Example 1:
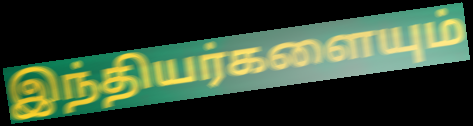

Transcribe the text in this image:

இந்தியர்களையும்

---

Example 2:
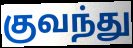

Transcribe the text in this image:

குவந்து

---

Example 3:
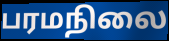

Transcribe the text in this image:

பரமநிலை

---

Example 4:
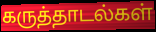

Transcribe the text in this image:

கருத்தாடல்கள்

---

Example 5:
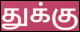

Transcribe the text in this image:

துக்கு